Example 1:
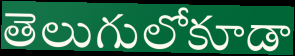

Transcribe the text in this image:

తెలుగులోకూడా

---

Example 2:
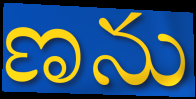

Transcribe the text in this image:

ణను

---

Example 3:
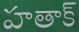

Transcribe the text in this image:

హతాక్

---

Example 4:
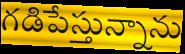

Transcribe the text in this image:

గడిపేస్తున్నాను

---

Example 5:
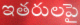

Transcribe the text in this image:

ఇతరులపై